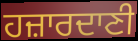
ਹਜ਼ਾਰਦਾਣੀ